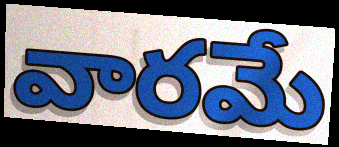
వారమే